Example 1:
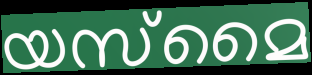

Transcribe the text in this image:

യസ്മൈ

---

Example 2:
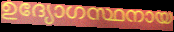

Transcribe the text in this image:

ഉദ്യോഗസ്ഥനായ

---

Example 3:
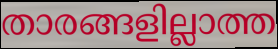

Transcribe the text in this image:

താരങ്ങളില്ലാത്ത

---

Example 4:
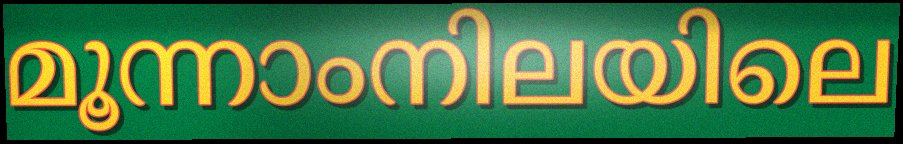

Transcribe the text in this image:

മൂന്നാംനിലയിലെ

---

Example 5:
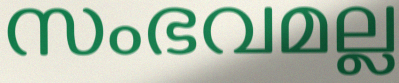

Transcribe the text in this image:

സംഭവമല്ല